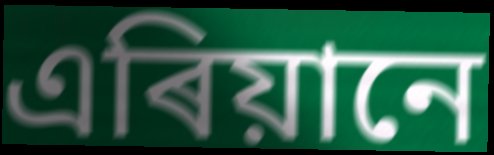
এৰিয়ানে